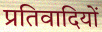
प्रतिवादियों